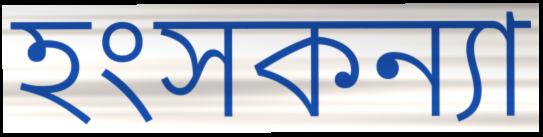
হংসকন্যা